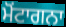
ਮੋਂਟਾਗਨਾ